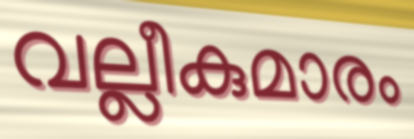
വല്ലീകുമാരം